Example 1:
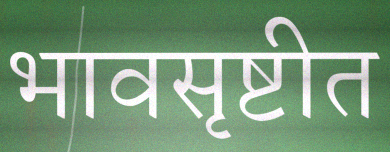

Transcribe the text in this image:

भावसृष्टीत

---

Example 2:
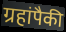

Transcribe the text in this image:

ग्रहांपैकी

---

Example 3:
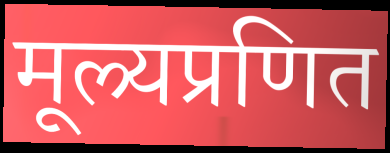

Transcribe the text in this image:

मूल्यप्रणित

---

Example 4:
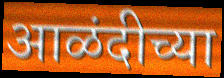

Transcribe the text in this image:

आळंदीच्या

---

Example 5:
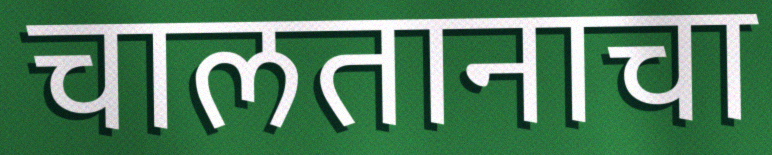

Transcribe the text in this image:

चालतानाचा